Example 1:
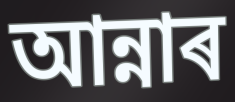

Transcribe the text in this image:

আন্নাৰ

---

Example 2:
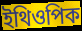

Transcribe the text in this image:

ইথিওপিক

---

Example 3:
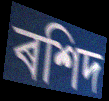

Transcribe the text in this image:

ৰশিদ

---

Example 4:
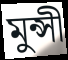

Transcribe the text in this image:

মুন্সী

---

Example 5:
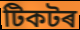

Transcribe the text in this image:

টিকটৰ